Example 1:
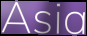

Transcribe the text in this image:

Asia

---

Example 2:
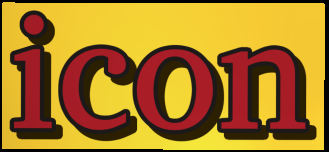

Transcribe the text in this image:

icon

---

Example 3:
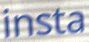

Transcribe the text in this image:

insta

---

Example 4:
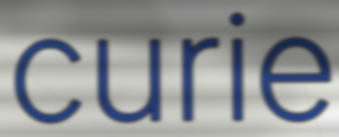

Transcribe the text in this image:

curie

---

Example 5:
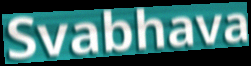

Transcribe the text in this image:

Svabhava